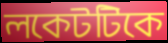
লকেটটিকে